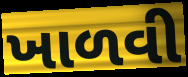
ખાળવી